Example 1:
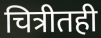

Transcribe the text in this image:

चित्रीतही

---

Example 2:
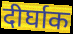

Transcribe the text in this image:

दीर्घाक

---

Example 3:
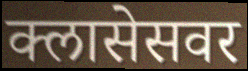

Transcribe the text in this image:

क्लासेसवर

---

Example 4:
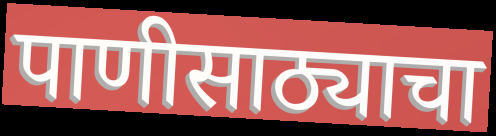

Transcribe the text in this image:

पाणीसाठ्याचा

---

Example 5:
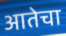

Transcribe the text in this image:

आतेचा